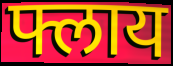
फ्लाय